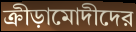
ক্রীড়ামোদীদের